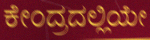
ಕೇಂದ್ರದಲ್ಲಿಯೇ